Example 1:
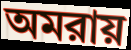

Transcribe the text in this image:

অমরায়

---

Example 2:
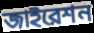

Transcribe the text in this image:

জাইরেশন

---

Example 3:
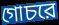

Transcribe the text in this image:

গোচরে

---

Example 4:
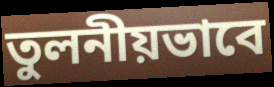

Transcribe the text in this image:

তুলনীয়ভাবে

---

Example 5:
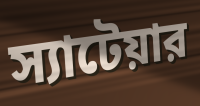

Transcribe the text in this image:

স্যাটেয়ার